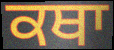
ਕਥਾ